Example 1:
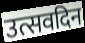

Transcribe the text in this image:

उत्सवदिन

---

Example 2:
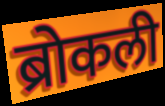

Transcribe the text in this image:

ब्रोकली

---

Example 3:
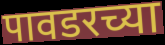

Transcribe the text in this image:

पावडरच्या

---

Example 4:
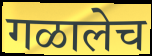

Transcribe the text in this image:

गळालेच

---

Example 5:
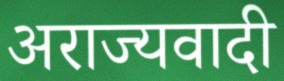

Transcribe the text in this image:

अराज्यवादी